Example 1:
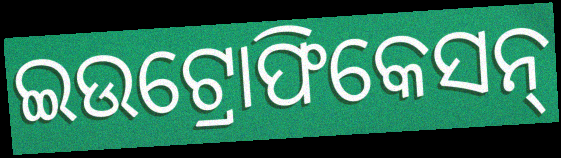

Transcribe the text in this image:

ଇଉଟ୍ରୋଫିକେସନ୍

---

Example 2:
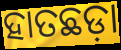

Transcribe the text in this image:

ହାତଛଡ଼ା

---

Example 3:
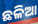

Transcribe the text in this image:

ଛଳିଆ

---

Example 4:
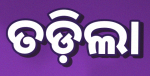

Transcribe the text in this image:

ତଡ଼ିଲା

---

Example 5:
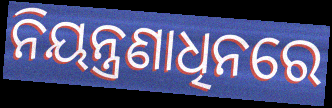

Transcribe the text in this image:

ନିୟନ୍ତ୍ରଣାଧିନରେ